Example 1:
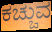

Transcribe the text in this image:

ಕಚ್ಚುವ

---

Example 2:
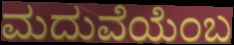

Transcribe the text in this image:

ಮದುವೆಯೆಂಬ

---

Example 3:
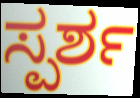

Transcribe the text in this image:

ಸ್ಪರ್ಶ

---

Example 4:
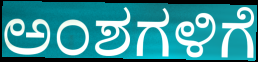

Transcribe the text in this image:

ಅಂಶಗಳಿಗೆ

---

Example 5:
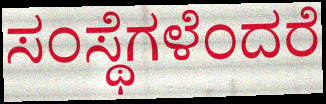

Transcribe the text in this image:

ಸಂಸ್ಥೆಗಳೆಂದರೆ